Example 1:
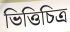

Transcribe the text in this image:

ভিত্তিচিত্র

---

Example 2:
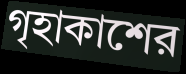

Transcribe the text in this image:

গৃহাকাশের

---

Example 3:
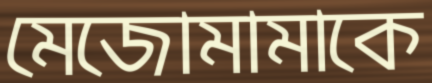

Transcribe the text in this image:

মেজোমামাকে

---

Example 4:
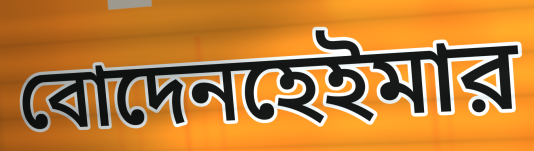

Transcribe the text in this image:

বোদেনহেইমার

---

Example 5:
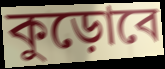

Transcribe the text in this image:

কুড়োবে